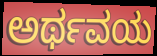
ಅರ್ಥವಯ